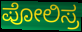
ಪೋಲಿಸ್ರ